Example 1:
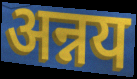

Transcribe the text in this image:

अन्नय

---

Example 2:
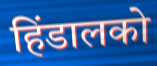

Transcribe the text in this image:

हिंडालको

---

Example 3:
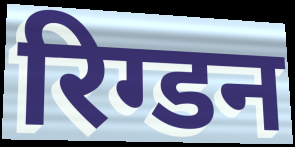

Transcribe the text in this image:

रिग्डन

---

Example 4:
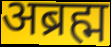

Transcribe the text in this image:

अब्रह्म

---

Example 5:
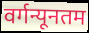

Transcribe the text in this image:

वर्गन्यूनतम